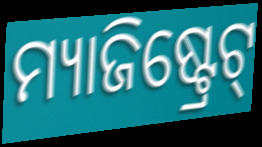
ମ୍ୟାଜିଷ୍ଟ୍ରେଟ୍